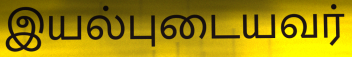
இயல்புடையவர்